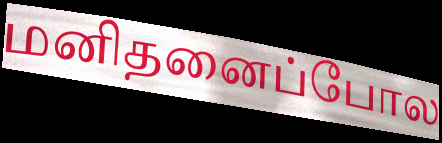
மனிதனைப்போல